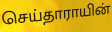
செய்தாராயின்